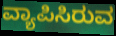
ವ್ಯಾಪಿಸಿರುವ